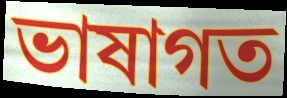
ভাষাগত